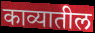
काव्यातील